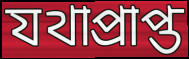
যথাপ্রাপ্ত